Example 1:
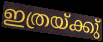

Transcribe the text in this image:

ഇത്രയ്ക്കു്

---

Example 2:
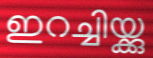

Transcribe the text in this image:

ഇറച്ചിയ്ക്കു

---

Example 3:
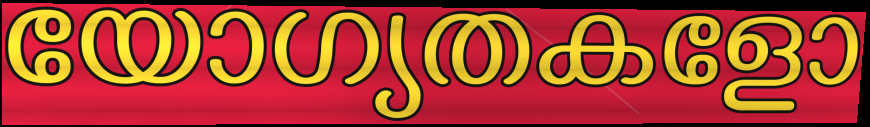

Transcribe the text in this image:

യോഗ്യതകളോ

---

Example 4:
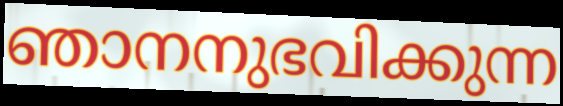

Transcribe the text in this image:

ഞാനനുഭവിക്കുന്ന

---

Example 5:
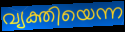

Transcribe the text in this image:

വ്യക്തിയെന്ന